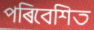
পৰিবেশিত